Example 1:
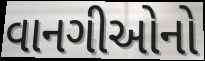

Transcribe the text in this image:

વાનગીઓનો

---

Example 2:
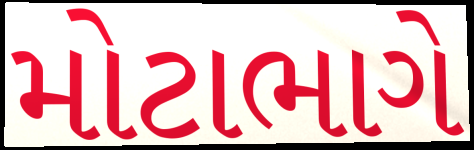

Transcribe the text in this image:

મોટાભાગે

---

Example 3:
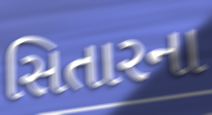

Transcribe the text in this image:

સિતારના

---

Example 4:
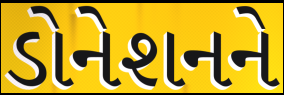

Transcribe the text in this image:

ડોનેશનને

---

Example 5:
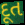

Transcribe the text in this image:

દૂત